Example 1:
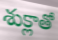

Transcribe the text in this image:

శుక్లాతో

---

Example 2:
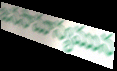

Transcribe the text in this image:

జనసామాన్యమున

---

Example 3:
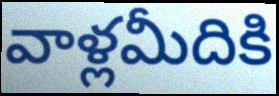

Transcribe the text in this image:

వాళ్లమీదికి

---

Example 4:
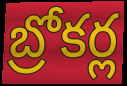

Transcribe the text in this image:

బ్రోకర్ల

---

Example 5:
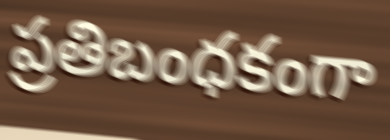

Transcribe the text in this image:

ప్రతిబంధకంగా